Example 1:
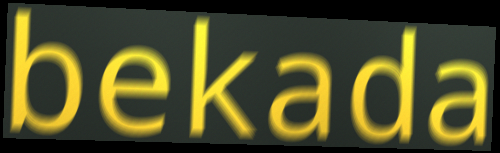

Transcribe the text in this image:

bekada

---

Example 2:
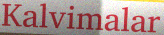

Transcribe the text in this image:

Kalvimalar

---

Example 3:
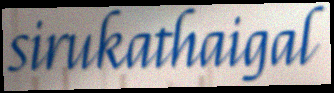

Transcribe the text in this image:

sirukathaigal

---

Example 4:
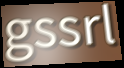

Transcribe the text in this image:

gssrl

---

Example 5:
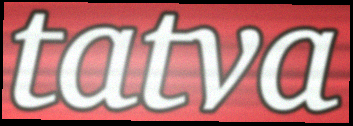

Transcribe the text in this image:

tatva